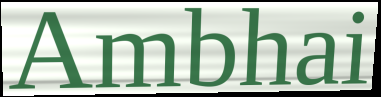
Ambhai